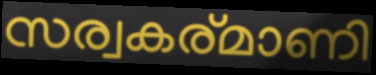
സര്വകര്മാണി